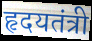
हृदयतंत्री